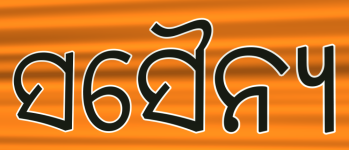
ସସୈନ୍ୟ